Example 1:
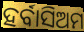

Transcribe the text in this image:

ହର୍ବାସିଅମ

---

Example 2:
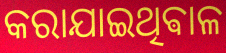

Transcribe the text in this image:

କରାଯାଇଥିଵାଳ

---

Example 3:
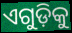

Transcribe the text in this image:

ଏଗୁଡ଼ିକୁ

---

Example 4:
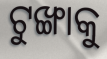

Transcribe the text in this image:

ଟୁଙ୍ଖାକୁ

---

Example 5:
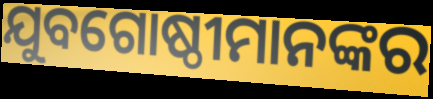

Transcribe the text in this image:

ଯୁବଗୋଷ୍ଠୀମାନଙ୍କର